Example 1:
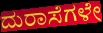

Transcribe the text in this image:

ದುರಾಸೆಗಳೇ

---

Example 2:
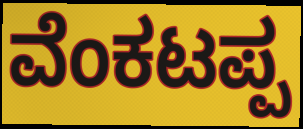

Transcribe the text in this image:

ವೆಂಕಟಪ್ಪ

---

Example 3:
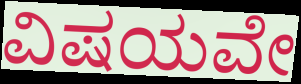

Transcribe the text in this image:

ವಿಷಯವೇ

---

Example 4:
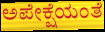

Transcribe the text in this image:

ಅಪೇಕ್ಷೆಯಂತೆ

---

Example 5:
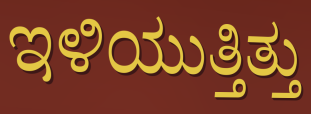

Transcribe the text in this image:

ಇಳಿಯುತ್ತಿತ್ತು